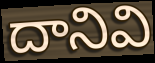
దానివి